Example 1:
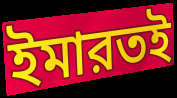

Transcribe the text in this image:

ইমারতই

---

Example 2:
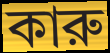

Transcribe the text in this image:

কারু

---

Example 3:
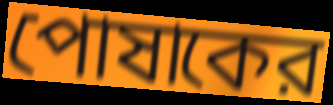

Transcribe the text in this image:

পোষাকের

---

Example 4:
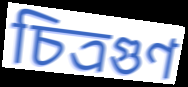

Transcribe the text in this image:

চিত্রগুণ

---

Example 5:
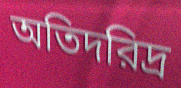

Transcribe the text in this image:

অতিদরিদ্র